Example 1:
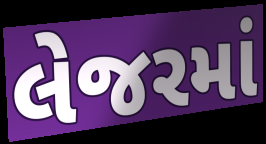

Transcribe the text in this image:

લેજરમાં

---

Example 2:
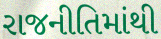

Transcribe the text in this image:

રાજનીતિમાંથી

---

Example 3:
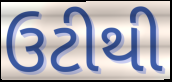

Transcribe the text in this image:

ઉટીથી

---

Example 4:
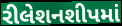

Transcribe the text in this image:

રીલેશનશીપમાં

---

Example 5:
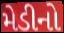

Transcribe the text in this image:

મેડીનો